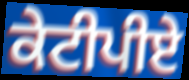
ਕੇਟੀਪੀਏ